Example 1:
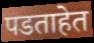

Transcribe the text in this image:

पडताहेत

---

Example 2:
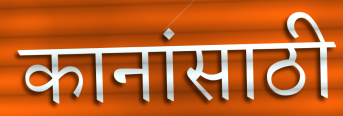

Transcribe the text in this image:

कानांसाठी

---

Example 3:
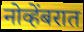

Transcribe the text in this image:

नोव्हेंबरात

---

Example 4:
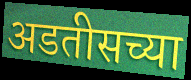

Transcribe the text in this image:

अडतीसच्या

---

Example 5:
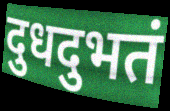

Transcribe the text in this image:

दुधदुभतं